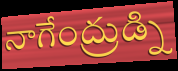
నాగేంద్రుడ్ని